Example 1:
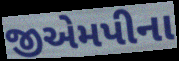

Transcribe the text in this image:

જીએમપીના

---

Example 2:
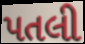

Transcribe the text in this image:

પતલી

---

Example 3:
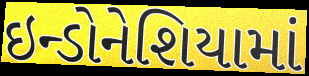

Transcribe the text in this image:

ઇન્ડોનેશિયામાં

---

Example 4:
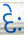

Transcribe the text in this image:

દેઃ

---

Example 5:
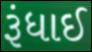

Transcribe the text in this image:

રૂંધાઈ